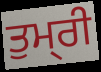
ਤੁਮ੍‍ਰੀ